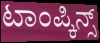
ಟಾಂಪ್ಕಿನ್ಸ್